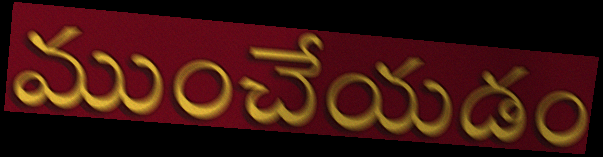
ముంచేయడం